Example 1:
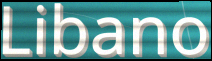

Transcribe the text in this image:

Libano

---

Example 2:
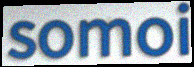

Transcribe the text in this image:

somoi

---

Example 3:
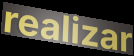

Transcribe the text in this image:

realizar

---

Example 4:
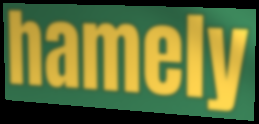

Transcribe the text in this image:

hamely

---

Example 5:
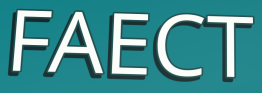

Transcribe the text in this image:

FAECT